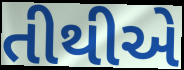
તીથીએ